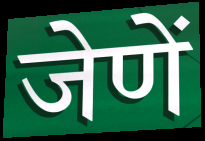
जेणें